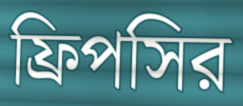
ফ্রিপসির